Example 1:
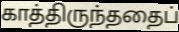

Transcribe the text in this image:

காத்திருந்ததைப்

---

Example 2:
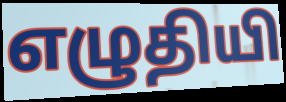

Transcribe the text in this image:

எழுதியி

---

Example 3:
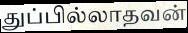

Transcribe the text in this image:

துப்பில்லாதவன்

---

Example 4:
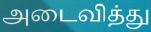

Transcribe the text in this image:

அடைவித்து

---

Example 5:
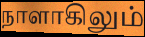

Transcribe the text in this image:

நாளாகிலும்